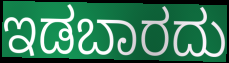
ಇಡಬಾರದು